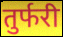
तुर्फरी